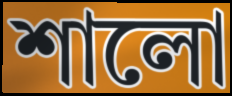
শালো